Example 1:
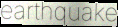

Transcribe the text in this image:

earthquake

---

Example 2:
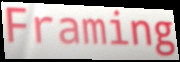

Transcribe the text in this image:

Framing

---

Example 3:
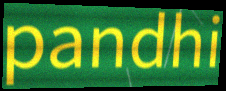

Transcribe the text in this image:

pandhi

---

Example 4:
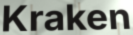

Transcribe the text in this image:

Kraken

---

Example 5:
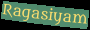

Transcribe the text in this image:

Ragasiyam